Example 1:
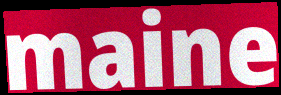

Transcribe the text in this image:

maine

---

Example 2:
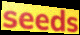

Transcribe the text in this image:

seeds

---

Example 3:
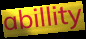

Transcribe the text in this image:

abillity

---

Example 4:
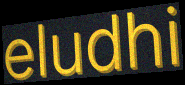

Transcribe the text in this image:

eludhi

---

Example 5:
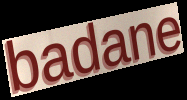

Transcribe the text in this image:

badane